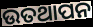
ଉତଥାପନ